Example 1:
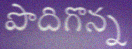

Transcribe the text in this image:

పొదిగొన్న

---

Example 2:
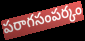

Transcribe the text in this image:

పరాగసంపర్కం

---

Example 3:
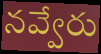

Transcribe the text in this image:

నవ్వేరు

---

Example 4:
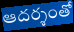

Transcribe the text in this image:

ఆదర్శంతో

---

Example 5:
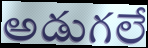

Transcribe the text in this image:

అడుగలే